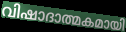
വിഷാദാത്മകമായി